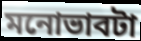
মনোভাবটা